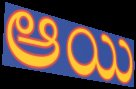
ఆయి